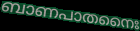
ബാണപാതനൈഃ